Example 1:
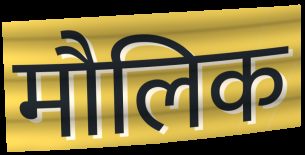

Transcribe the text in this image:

मौलिक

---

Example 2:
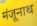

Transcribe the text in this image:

मंजूनाथ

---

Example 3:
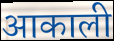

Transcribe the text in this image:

आकाली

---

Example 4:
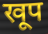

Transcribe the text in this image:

खूप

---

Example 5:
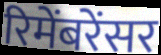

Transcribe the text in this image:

रिमेंबरेंसर